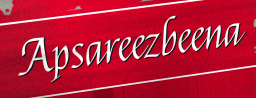
Apsareezbeena